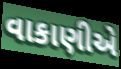
વાકાણીએ